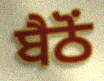
ਬੈਠੋਂ